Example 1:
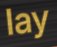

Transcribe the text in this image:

lay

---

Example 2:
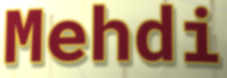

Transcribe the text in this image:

Mehdi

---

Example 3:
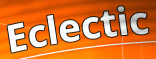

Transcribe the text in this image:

Eclectic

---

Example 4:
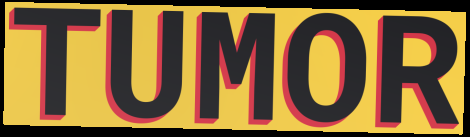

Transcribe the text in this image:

TUMOR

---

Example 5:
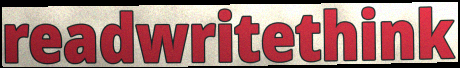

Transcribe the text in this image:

readwritethink